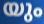
യും